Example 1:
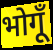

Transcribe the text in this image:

भोगूँ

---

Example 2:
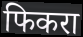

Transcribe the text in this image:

फिकरा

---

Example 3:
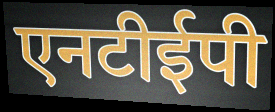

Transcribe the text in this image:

एनटीईपी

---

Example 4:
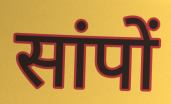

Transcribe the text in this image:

सांपों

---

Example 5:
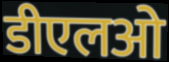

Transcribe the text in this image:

डीएलओ